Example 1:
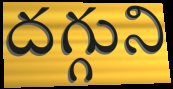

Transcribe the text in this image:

దగ్గుని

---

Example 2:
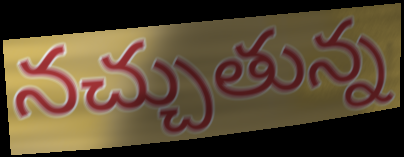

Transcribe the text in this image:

నచ్చుతున్న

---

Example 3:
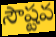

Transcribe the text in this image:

సౌష్టవ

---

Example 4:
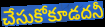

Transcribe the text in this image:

చేసుకోకూడదనీ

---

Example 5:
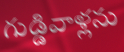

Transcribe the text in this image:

గుడ్డివాళ్లను